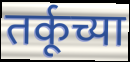
तर्कूच्या